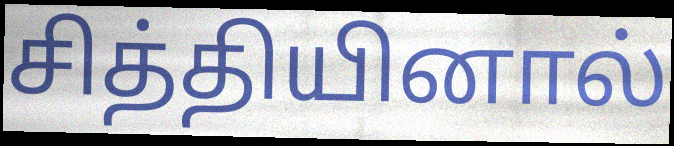
சித்தியினால்